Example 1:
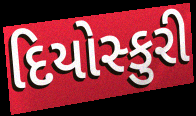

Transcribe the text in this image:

દિયોસ્કુરી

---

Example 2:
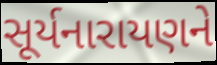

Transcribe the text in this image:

સૂર્યનારાયણને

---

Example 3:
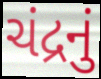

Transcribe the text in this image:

ચંદ્રનું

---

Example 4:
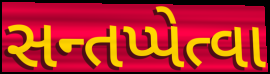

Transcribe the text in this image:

સન્તપ્પેત્વા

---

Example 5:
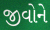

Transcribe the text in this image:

જીવોને